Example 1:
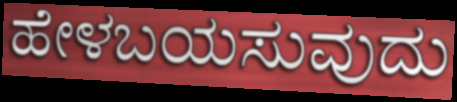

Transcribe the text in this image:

ಹೇಳಬಯಸುವುದು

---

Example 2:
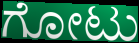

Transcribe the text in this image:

ಗೋಟು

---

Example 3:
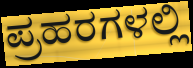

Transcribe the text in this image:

ಪ್ರಹರಗಳಲ್ಲಿ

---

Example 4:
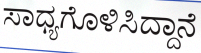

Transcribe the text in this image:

ಸಾಧ್ಯಗೊಳಿಸಿದ್ದಾನೆ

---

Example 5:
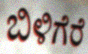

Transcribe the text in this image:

ಬಿಳಿಗೆರೆ